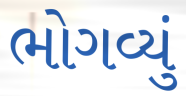
ભોગવ્યું